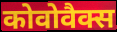
कोवोवैक्स